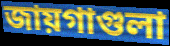
জায়গাগুলা